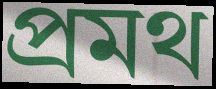
প্রমথ